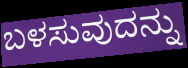
ಬಳಸುವುದನ್ನು